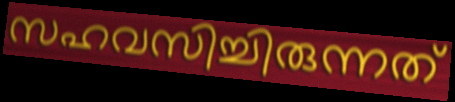
സഹവസിച്ചിരുന്നത്